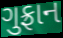
ગુફ્રાન